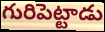
గురిపెట్టాడు